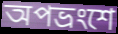
অপভ্রংশে